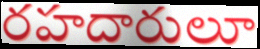
రహదారులూ